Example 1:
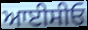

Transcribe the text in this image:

ਆਈਸੀਓ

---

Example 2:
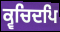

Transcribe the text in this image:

ਕ੍ਵਚਿਦਪਿ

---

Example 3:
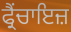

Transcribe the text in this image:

ਫ੍ਰੈਂਚਾਇਜ਼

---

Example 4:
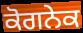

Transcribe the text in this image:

ਕੋਗਨੇਕ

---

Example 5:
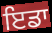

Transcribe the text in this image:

ਇਡਾ